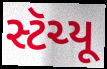
સ્ટૅચ્યૂ